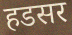
हडसर